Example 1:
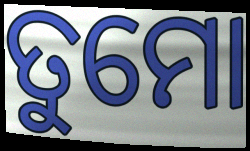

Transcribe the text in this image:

ତୁମୋ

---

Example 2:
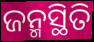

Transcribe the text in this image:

ଜନ୍ମସ୍ଥିତି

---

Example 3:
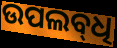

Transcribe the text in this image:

ଉପଲବ୍‌ଧି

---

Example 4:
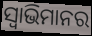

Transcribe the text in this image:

ସ୍ଵାଭିମାନର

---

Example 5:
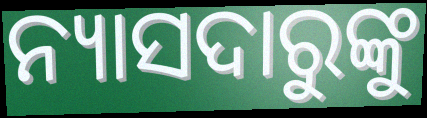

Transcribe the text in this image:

ନ୍ୟାସଦାରୁଙ୍କୁ